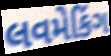
લવમેકિંગ